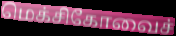
மெக்சிகோவைச்